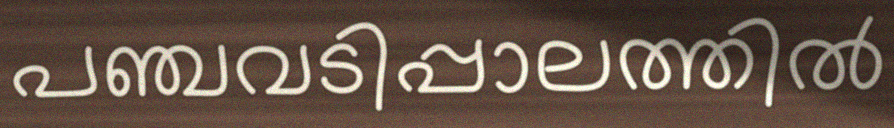
പഞ്ചവടിപ്പാലത്തിൽ